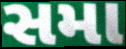
સમા